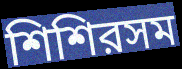
শিশিরসম